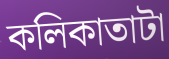
কলিকাতাটা